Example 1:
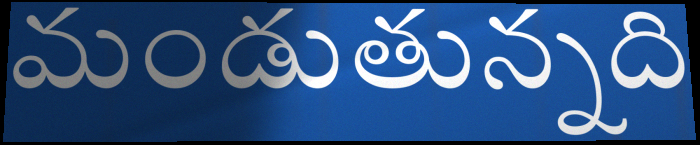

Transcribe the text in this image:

మండుతున్నది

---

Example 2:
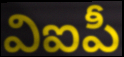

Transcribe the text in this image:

విఐపీ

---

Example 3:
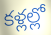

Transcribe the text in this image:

కళ్లల్లో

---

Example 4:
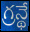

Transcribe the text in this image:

గ్రన్థే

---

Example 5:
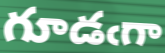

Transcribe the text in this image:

గూడఁగా